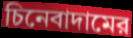
চিনেবাদামের